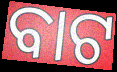
ବାଟ